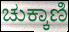
ಚುಕ್ಕಾಣಿ